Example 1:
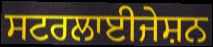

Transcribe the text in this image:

ਸਟਰਲਾਈਜੇਸ਼ਨ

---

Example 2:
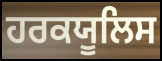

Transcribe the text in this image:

ਹਰਕਯੂਲਿਸ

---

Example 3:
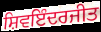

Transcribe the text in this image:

ਸ਼ਿਵਇੰਦਰਜੀਤ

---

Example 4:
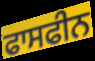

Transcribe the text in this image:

ਫਾਸਫੀਨ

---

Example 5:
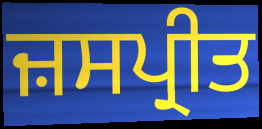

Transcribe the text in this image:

ਜ਼ਸਪ੍ਰੀਤ